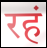
रहं